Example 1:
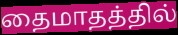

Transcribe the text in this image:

தைமாதத்தில்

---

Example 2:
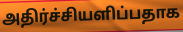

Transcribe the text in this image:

அதிர்ச்சியளிப்பதாக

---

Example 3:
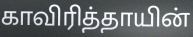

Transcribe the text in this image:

காவிரித்தாயின்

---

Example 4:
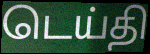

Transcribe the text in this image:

டெய்தி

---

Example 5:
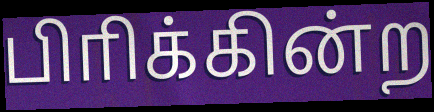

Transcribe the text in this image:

பிரிக்கின்ற